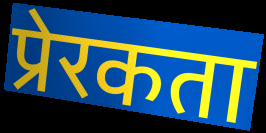
प्रेरकता